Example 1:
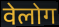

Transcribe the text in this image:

वेलोग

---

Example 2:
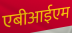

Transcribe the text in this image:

एबीआईएम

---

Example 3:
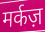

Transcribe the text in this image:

मर्कज़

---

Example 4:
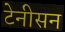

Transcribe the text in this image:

टेनीसन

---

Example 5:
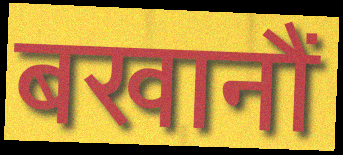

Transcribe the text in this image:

बखानौं